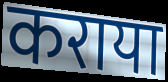
कराया